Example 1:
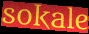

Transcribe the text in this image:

sokale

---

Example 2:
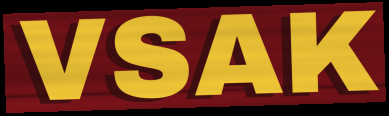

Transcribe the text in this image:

VSAK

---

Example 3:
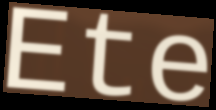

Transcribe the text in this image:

Ete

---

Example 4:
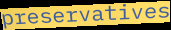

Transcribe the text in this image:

preservatives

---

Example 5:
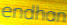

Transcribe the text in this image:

endhan